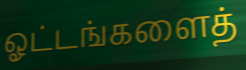
ஓட்டங்களைத்